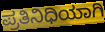
ಪ್ರತಿನಿಧಿಯಾಗಿ